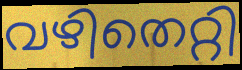
വഴിതെറ്റി